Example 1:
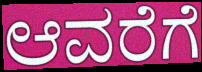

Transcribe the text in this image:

ಆವರೆಗೆ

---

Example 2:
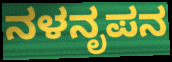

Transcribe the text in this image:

ನಳನೃಪನ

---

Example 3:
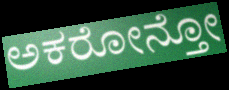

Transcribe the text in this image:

ಅಕರೋನ್ತೋ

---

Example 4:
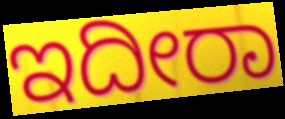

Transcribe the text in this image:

ಇದೀರಾ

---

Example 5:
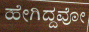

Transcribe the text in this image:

ಹೇಗಿದ್ದವೋ